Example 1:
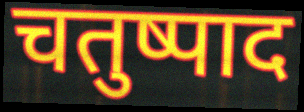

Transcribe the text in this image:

चतुष्पाद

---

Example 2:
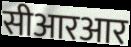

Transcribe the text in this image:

सीआरआर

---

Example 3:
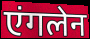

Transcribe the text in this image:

एंगलेन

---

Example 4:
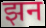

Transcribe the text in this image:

झन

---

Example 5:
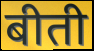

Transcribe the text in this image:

बीती